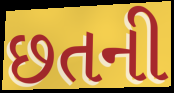
છતની